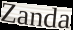
Zanda